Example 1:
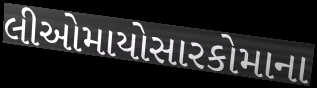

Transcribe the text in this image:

લીઓમાયોસારકોમાના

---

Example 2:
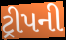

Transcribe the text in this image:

ટ્રીપની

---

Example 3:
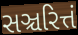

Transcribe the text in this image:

સઞ્ચરિત્તં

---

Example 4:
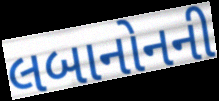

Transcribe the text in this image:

લબાનોનની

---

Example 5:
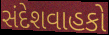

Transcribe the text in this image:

સંદેશવાહકો